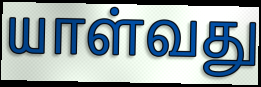
யாள்வது